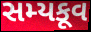
સમ્યકૂવ